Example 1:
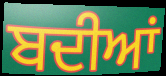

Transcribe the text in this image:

ਬਦੀਆਂ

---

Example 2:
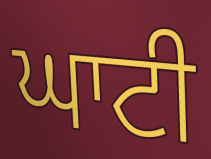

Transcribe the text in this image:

ਘਾਟੀ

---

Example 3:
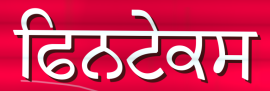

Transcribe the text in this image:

ਫਿਨਟੇਕਸ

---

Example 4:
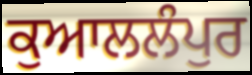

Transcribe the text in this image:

ਕੁਆਲਲੰਪੁਰ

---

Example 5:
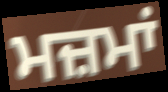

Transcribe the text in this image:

ਮਜ਼ਮਾਂ